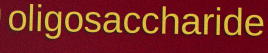
oligosaccharide